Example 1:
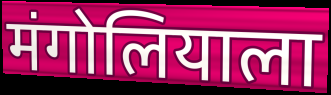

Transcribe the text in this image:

मंगोलियाला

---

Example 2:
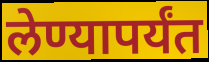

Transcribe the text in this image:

लेण्यापर्यंत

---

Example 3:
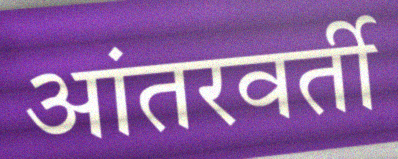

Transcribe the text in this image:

आंतरवर्ती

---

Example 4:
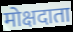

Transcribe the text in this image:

मोक्षदाता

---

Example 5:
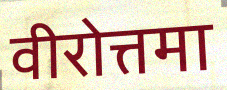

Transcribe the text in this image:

वीरोत्तमा